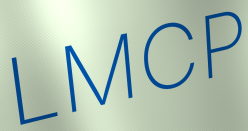
LMCP